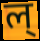
ल्